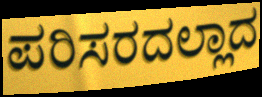
ಪರಿಸರದಲ್ಲಾದ